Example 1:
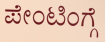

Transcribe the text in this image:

ಪೇಂಟಿಂಗ್ಗೆ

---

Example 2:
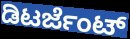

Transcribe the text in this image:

ಡಿಟರ್ಜೆಂಟ್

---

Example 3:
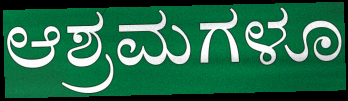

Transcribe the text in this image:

ಆಶ್ರಮಗಳೂ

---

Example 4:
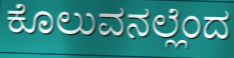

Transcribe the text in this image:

ಕೊಲುವನಲ್ಲೆಂದ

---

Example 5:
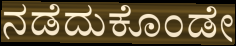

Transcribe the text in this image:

ನಡೆದುಕೊಂಡೇ